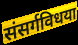
संसर्गविधया